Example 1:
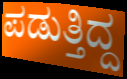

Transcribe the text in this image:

ಪಡುತ್ತಿದ್ದ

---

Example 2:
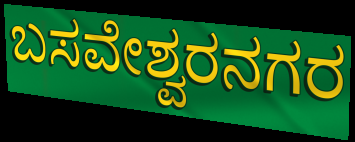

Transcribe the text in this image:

ಬಸವೇಶ್ವರನಗರ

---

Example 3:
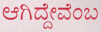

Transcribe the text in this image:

ಆಗಿದ್ದೇವೆಂಬ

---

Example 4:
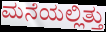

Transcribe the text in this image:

ಮನೆಯಲ್ಲಿತ್ತು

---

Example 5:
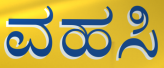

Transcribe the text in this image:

ವಹಸಿ